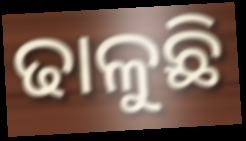
ଢାଳୁଛି